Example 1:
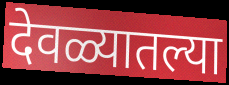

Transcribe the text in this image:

देवळ्यातल्या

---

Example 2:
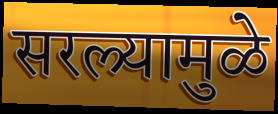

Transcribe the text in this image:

सरल्यामुळे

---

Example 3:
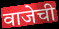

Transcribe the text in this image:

वाजेची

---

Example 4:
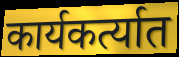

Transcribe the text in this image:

कार्यकर्त्यात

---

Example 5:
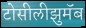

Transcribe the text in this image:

टोसीलीझुमॅब